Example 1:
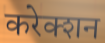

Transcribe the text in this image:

करेक्शन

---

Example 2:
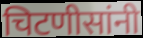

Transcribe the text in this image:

चिटणीसांनी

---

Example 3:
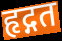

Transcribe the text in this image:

हृद्गत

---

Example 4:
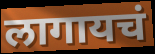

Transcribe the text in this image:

लागायचं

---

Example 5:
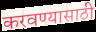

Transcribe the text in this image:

करवण्यासाठी